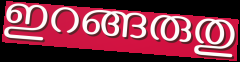
ഇറങ്ങരുതു